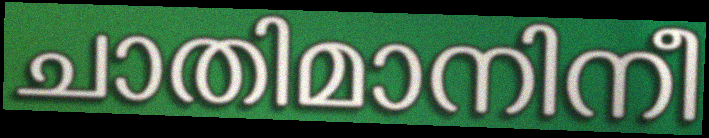
ചാതിമാനിനീ